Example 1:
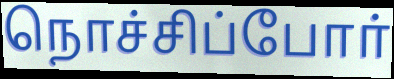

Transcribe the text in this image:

நொச்சிப்போர்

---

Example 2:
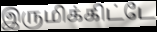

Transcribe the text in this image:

இருமிக்கிட்டே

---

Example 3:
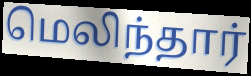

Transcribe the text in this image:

மெலிந்தார்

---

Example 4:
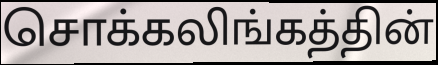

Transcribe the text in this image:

சொக்கலிங்கத்தின்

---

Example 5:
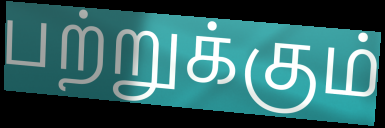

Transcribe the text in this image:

பற்றுக்கும்